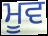
ਮੂਵ